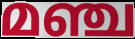
മഞ്ച